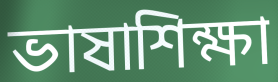
ভাষাশিক্ষা